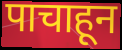
पाचाहून